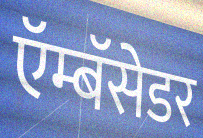
ऍम्बॅसेडर